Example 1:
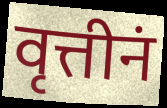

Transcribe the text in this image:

वृत्तीनं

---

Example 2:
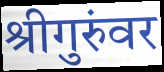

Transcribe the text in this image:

श्रीगुरुंवर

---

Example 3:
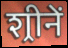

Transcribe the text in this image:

श्रीनें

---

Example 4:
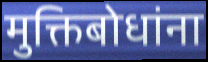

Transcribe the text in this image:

मुक्तिबोधांना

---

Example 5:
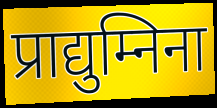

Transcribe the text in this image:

प्राद्युम्निना